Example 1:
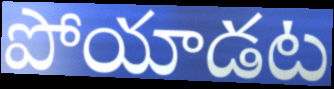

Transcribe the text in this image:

పోయాడట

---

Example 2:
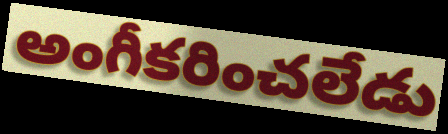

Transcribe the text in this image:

అంగీకరించలేడు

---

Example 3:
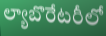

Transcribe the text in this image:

ల్యాబొరేటరీలో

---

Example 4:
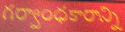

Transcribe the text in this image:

గర్వాంధకారాన్ని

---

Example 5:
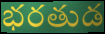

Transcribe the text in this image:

భరతుడ